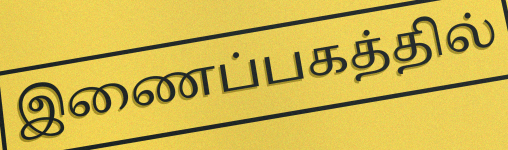
இணைப்பகத்தில்